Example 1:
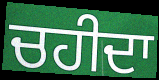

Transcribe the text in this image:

ਚਹੀਦਾ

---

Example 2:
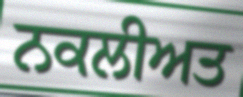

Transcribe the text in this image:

ਨਕਲੀਅਤ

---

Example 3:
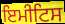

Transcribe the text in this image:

ਇਮੀਟਿਸ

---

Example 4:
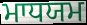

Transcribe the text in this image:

ਮਾਧਯਮ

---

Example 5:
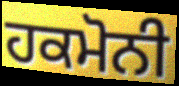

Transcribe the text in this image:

ਹਕਮੋਨੀ